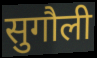
सुगौली